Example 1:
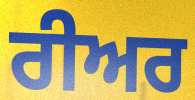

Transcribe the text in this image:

ਰੀਅਰ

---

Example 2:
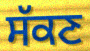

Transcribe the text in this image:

ਸੱਕਣ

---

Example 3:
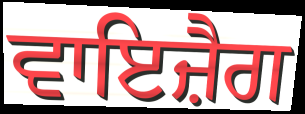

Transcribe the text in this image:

ਵਾਇਜ਼ੈਗ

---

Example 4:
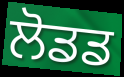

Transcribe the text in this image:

ਲੋਡਡ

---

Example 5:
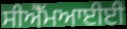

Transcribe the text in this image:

ਸੀਐੱਮਆਈਈ